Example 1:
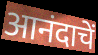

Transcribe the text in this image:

आनंदाचें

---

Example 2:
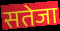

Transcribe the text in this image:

सतेजा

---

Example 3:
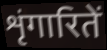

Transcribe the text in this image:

शृंगारितें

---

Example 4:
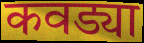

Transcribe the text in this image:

कवड्या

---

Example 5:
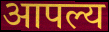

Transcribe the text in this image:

आपल्य